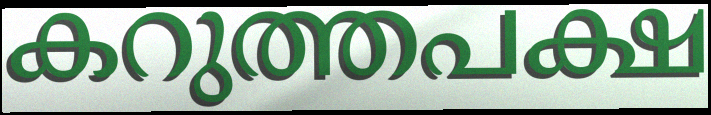
കറുത്തപക്ഷ